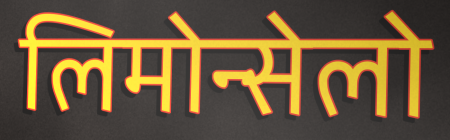
लिमोन्सेलो